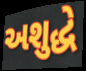
અશુદ્ધે